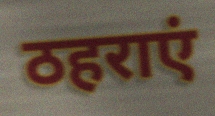
ठहराएं